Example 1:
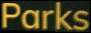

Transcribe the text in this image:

Parks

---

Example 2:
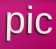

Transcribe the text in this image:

pic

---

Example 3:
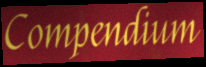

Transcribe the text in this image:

Compendium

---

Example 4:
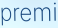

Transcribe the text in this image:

premi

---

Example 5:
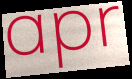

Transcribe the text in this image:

apr